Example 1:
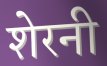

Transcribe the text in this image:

शेरनी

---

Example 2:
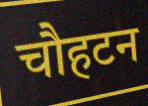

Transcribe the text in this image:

चौहटन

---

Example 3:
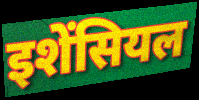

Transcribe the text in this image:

इशेंसियल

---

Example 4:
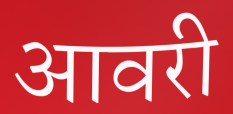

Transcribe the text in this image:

आवरी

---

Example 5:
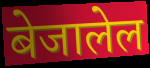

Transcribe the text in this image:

बेजालेल